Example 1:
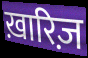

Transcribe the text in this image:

ख़ारिज़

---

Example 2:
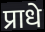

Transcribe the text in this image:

प्राधे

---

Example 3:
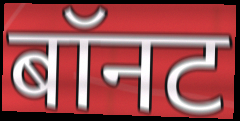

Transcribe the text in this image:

बॉनट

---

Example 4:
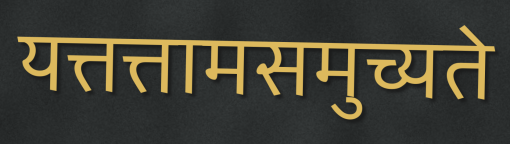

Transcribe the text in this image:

यत्तत्तामसमुच्यते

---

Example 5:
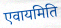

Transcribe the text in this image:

एवायमिति